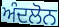
ਅੰਦਲੋਨ